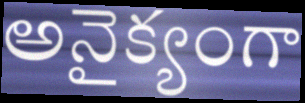
అనైక్యంగా